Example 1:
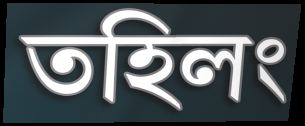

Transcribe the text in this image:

তহিলং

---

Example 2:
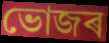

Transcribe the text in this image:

ভোজৰ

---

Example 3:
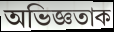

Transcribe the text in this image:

অভিজ্ঞতাক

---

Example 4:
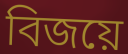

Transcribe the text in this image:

বিজয়ে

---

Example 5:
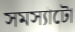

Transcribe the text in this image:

সমস্যাটো